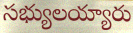
సభ్యులయ్యారు